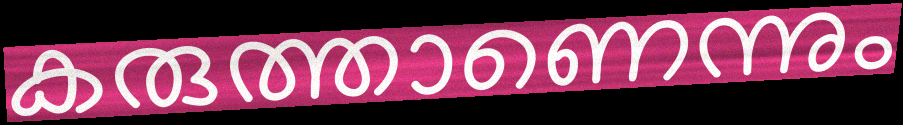
കരുത്താണെന്നും